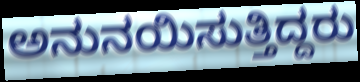
ಅನುನಯಿಸುತ್ತಿದ್ದರು